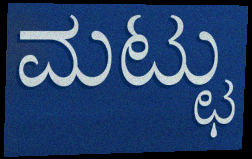
ಮಟ್ಟು